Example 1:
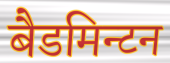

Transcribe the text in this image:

बैडमिन्टन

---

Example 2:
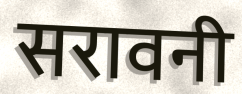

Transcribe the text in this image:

सरावनी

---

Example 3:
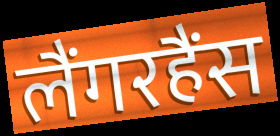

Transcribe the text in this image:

लैंगरहैंस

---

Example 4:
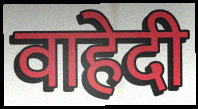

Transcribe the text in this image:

वाहेदी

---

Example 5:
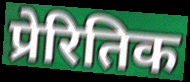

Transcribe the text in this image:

प्रेरितिक